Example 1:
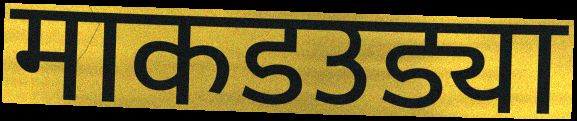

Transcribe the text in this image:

माकडउड्या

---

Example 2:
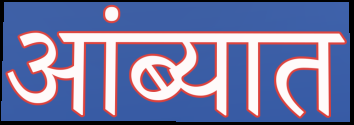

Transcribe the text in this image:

आंब्यात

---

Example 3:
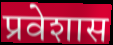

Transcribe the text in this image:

प्रवेशास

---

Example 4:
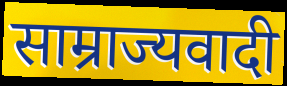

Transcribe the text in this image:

साम्राज्यवादी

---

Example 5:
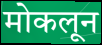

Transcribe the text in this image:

मोकलून